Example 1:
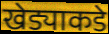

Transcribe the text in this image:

खेड्याकडे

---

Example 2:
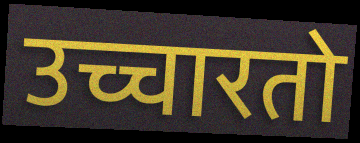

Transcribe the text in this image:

उच्चारतो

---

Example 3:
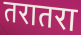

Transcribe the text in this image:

तरातरा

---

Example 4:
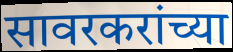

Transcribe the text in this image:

सावरकरांच्या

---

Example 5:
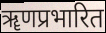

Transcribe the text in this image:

ॠणप्रभारित